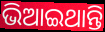
ଭିଆଇଥାନ୍ତି